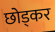
छोड्कर